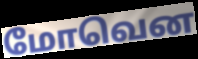
மோவென